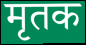
मृतक